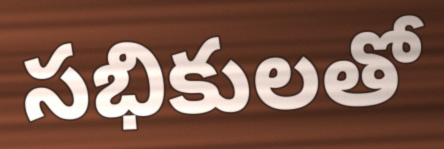
సభికులతో